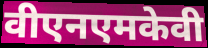
वीएनएमकेवी